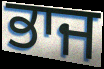
ਭਾਜ